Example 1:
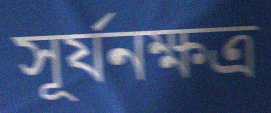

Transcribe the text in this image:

সূর্যনক্ষত্র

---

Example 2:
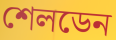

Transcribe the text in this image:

শেলডেন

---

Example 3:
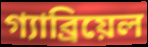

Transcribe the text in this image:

গ্যাব্রিয়েল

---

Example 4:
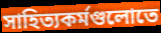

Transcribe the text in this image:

সাহিত্যকর্মগুলোতে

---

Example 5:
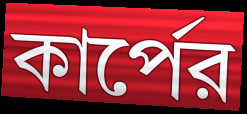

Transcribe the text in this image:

কার্পের